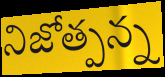
నిజోత్పన్న